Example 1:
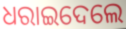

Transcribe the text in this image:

ଧରାଇଦେଲେ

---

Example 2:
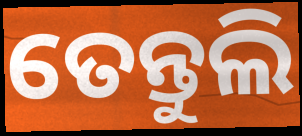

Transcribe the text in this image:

ତେନ୍ତୁଲି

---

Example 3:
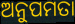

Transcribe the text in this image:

ଅନୁପମତା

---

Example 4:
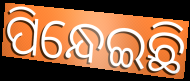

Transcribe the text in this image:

ପିନ୍ଧେଇଛି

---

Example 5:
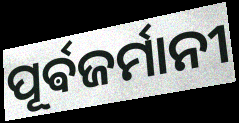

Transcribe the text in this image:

ପୂର୍ଵଜର୍ମାନୀ